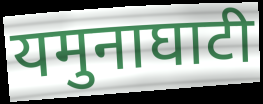
यमुनाघाटी